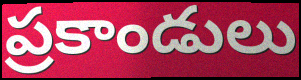
ప్రకాండులు